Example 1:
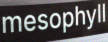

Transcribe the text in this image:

mesophyll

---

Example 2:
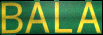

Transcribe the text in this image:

BALA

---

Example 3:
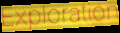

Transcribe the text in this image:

Exploration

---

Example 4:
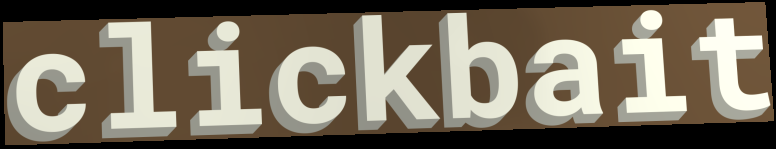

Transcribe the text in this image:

clickbait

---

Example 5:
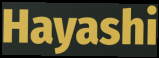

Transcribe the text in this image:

Hayashi